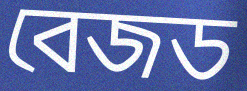
বেজড